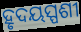
ହୃଦୟସ୍ପଶୀ